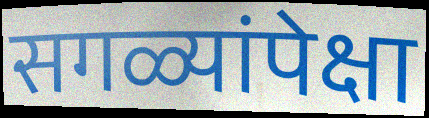
सगळ्यांपेक्षा